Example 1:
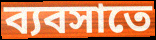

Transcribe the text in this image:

ব্যবসাতে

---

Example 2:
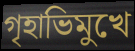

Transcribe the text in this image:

গৃহাভিমুখে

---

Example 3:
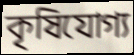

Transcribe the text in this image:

কৃষিযোগ্য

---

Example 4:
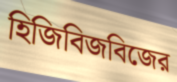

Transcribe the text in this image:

হিজিবিজবিজের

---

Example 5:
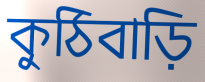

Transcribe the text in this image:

কুঠিবাড়ি